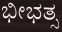
ಭೀಭತ್ಸ